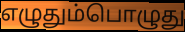
எழுதும்பொழுது